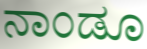
ನಾಂಡೂ